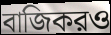
বাজিকরও